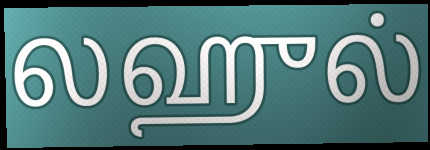
லஹுல்